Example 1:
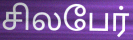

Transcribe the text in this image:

சிலபேர்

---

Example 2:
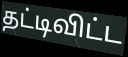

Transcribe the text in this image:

தட்டிவிட்ட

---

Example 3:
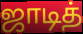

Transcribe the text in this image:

ஜாடித்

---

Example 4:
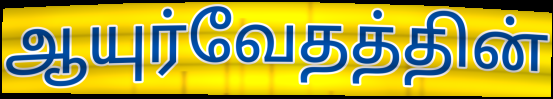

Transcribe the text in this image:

ஆயுர்வேதத்தின்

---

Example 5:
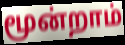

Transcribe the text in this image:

மூன்றாம்